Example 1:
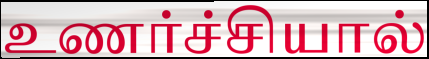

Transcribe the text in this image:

உணர்ச்சியால்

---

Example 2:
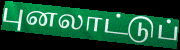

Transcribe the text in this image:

புனலாட்டுப்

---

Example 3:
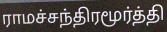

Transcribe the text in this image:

ராமச்சந்திரமூர்த்தி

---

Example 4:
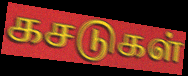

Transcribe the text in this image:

கசடுகள்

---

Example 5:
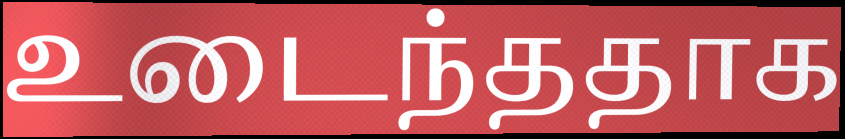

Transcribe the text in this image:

உடைந்ததாக